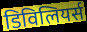
डिविलियर्स